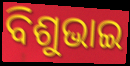
ବିଶୁଭାଇ